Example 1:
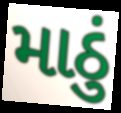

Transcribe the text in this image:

માઠું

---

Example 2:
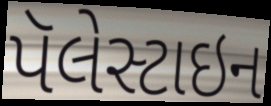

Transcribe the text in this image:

પૅલેસ્ટાઇન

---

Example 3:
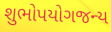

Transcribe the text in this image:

શુભોપયોગજન્ય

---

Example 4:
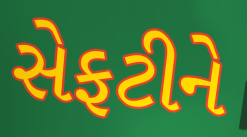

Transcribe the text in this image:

સેફટીને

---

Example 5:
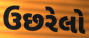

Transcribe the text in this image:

ઉછરેલો